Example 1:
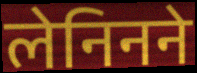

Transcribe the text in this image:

लेनिनने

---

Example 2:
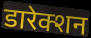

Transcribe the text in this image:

डारेक्शन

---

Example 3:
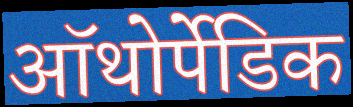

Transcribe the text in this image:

ऑथोर्पेडिक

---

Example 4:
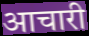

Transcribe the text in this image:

आचारी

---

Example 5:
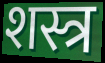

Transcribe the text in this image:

शस्त्र